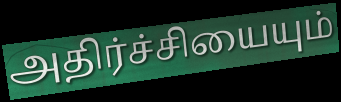
அதிர்ச்சியையும்